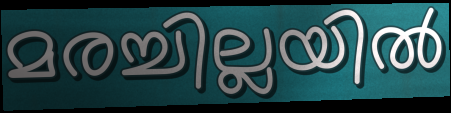
മരച്ചില്ലയിൽ